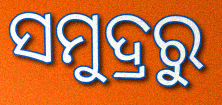
ସମୁଦ୍ରରୁ